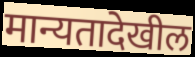
मान्यतादेखील